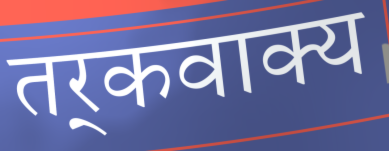
तर्कवाक्य